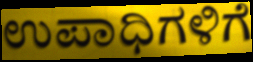
ಉಪಾಧಿಗಳಿಗೆ